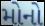
મોનો